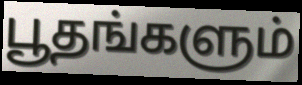
பூதங்களும்